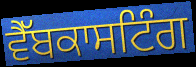
ਵੈੱਬਕਾਸਟਿੰਗ